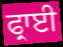
ਫ੍ਰਾਈ